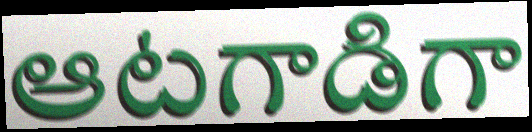
ఆటగాడిగా